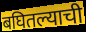
बघितल्याची